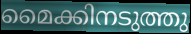
മൈക്കിനടുത്തു